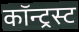
कॉन्ट्रस्ट